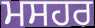
ਮਸਹਰ